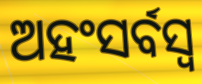
ଅହଂସର୍ବସ୍ୱ